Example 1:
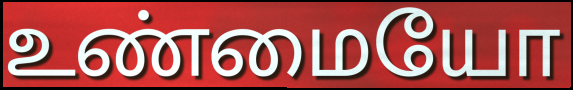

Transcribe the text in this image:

உண்மையோ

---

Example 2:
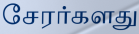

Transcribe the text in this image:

சேரர்களது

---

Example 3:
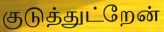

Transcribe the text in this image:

குடுத்துட்றேன்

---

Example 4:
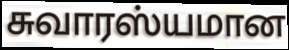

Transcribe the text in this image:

சுவாரஸ்யமான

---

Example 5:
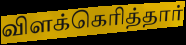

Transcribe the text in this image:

விளக்கெரித்தார்